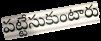
పట్టేసుకుంటారు